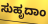
ಸುಹೃದಾಂ